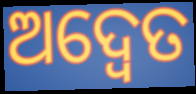
ଅଦ୍ଵେତ